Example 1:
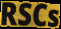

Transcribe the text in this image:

RSCs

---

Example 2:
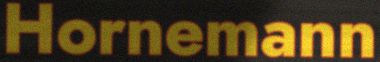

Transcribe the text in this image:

Hornemann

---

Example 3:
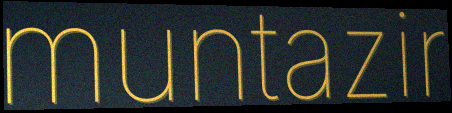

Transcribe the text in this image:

muntazir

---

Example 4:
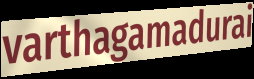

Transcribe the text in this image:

varthagamadurai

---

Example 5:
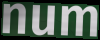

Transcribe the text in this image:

num